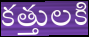
కత్తులకి